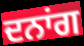
ਦਨਾਂਗ